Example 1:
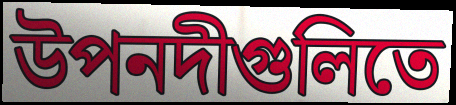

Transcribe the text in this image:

উপনদীগুলিতে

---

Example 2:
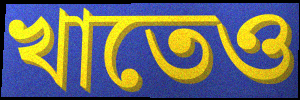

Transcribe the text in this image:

খাতেও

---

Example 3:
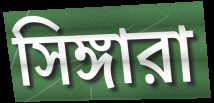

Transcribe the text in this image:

সিঙ্গারা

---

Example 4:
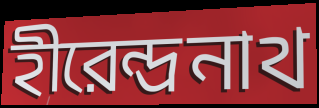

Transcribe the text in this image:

হীরেন্দ্রনাথ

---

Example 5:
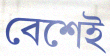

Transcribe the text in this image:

বেশেই